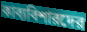
কাব্যবিশারদের